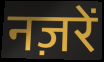
नज़रें